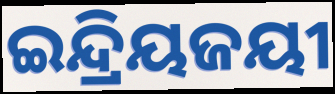
ଇନ୍ଦ୍ରିୟଜୟୀ